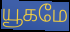
யூகமே